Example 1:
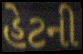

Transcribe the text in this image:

હેટની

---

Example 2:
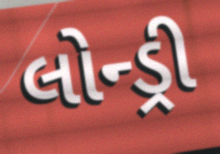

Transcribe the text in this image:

લોન્ડ્રી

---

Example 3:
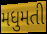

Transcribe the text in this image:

મધુમતી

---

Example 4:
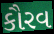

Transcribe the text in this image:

કૌરવ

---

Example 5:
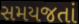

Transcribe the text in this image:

સમયજતાં